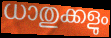
ധാതുക്കളും